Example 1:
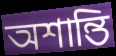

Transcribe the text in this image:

অশান্তি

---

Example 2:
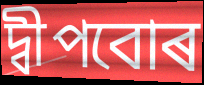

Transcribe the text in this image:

দ্বীপবোৰ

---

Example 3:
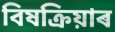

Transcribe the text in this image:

বিষক্ৰিয়াৰ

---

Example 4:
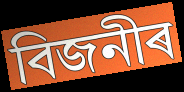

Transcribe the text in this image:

বিজনীৰ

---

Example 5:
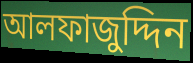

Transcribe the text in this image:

আলফাজুদ্দিন